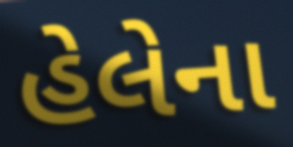
હેલેના